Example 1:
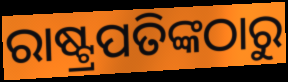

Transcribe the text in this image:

ରାଷ୍ଟ୍ରପତିଙ୍କଠାରୁ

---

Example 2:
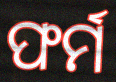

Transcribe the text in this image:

ଫର୍ମ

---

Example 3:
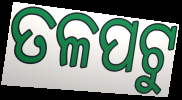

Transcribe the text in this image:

ତଳପଟୁ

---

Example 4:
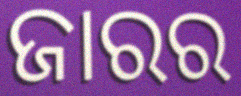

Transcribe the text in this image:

ଜାରର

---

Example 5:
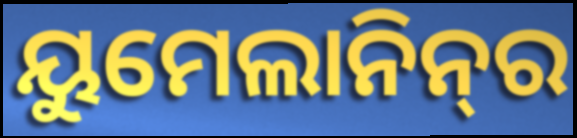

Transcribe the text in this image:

ୟୁମେଲାନିନ୍‌ର